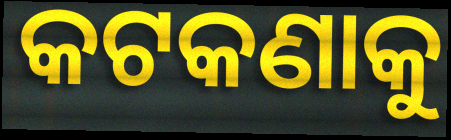
କଟକଣାକୁ